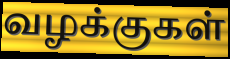
வழக்குகள்